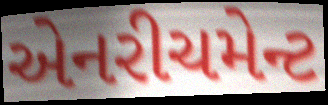
એનરીચમેન્ટ